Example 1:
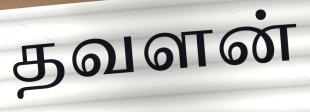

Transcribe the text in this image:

தவளன்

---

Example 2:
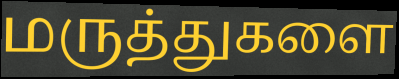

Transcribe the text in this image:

மருத்துகளை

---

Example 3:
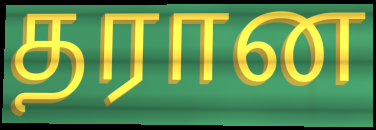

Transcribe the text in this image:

தரான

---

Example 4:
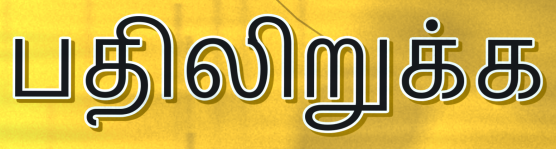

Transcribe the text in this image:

பதிலிறுக்க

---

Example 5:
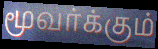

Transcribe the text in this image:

மூவர்க்கும்